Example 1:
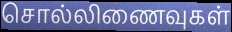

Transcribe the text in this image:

சொல்லிணைவுகள்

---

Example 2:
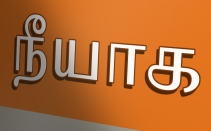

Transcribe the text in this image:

நீயாக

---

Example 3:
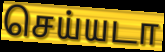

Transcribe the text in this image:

செய்யடா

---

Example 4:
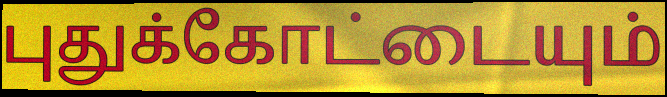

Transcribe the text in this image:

புதுக்கோட்டையும்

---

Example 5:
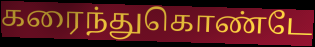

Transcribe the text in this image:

கரைந்துகொண்டே